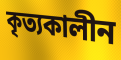
কৃত্যকালীন